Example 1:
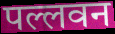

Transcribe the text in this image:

पल्लवन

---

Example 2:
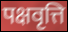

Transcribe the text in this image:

पक्षवृत्ति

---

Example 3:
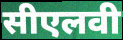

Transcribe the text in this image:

सीएलवी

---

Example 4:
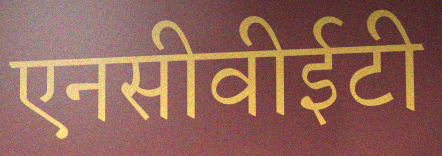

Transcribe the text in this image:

एनसीवीईटी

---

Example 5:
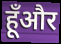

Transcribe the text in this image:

हूँऔर